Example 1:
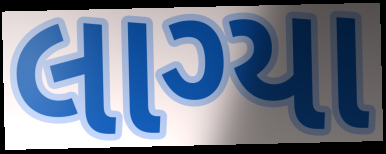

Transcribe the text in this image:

લાગ્યા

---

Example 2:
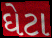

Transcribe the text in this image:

ઘેટા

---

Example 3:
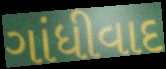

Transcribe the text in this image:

ગાંધીવાદ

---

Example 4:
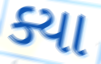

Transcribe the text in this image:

ક્યા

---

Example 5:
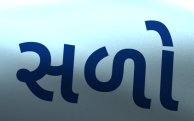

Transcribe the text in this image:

સળો